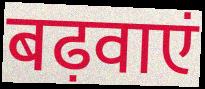
बढ़वाएं